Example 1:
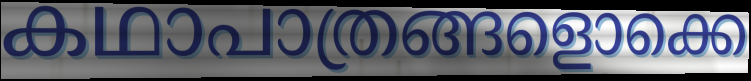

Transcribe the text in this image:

കഥാപാത്രങ്ങളൊക്കെ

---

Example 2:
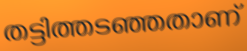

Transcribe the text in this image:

തട്ടിത്തടഞ്ഞതാണ്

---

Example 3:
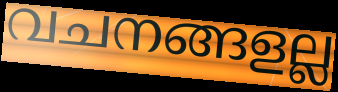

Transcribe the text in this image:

വചനങ്ങളല്ല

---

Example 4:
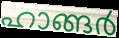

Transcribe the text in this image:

ഹാങ്ങർ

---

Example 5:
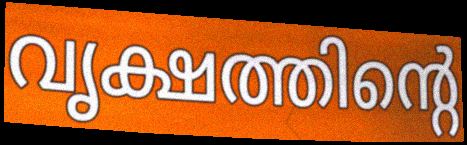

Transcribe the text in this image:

വൃക്ഷത്തിന്റെ